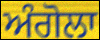
ਅੰਗੋਲਾ